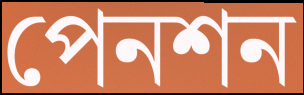
পেনশন